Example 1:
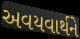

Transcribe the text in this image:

અવયવાર્થને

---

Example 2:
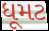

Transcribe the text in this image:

ધૂમટ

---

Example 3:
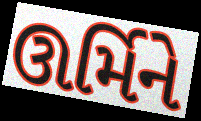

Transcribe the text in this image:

ઊર્મિને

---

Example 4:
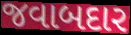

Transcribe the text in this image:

જવાબદાર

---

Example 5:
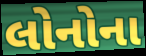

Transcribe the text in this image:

લોનોના